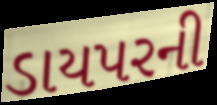
ડાયપરની